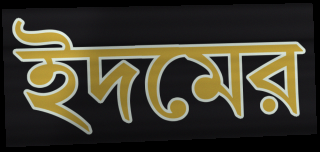
ইদমের